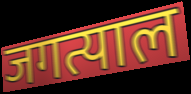
जगत्याल